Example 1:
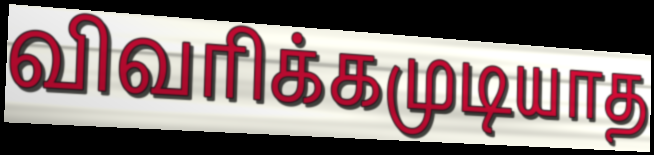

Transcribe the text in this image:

விவரிக்கமுடியாத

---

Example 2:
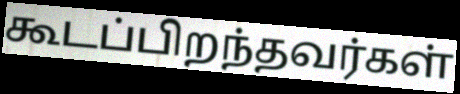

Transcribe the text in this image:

கூடப்பிறந்தவர்கள்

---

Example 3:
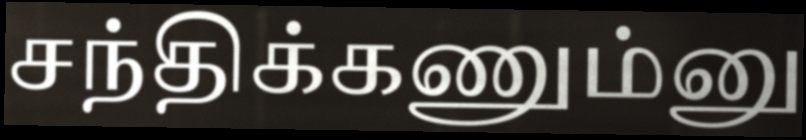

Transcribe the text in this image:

சந்திக்கணும்னு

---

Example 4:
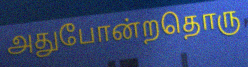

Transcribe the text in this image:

அதுபோன்றதொரு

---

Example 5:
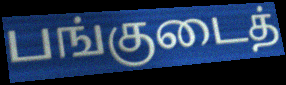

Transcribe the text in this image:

பங்குடைத்